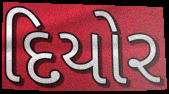
દિયોર